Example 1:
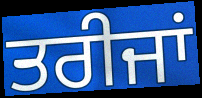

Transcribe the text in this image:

ਤਰੀਜਾਂ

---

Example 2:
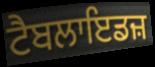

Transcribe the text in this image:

ਟੈਬਲਾਇਡਜ਼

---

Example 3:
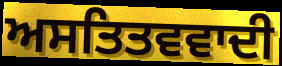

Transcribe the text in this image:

ਅਸਤਿਤਵਵਾਦੀ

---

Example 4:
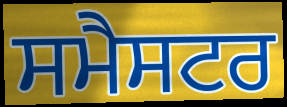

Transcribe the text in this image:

ਸਮੈਸਟਰ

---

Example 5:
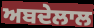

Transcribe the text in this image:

ਅਬਦੇਲਾਲ